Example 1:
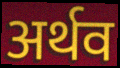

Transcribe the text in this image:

अर्थव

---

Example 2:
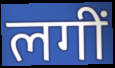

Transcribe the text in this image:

लगीं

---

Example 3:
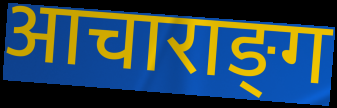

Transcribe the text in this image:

आचाराङ्ग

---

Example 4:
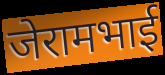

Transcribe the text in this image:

जेरामभाई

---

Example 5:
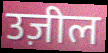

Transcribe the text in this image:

उज़ील